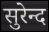
सुरेन्द